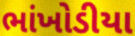
ભાંખોડીયા